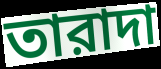
তারাদা